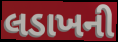
લડાખની